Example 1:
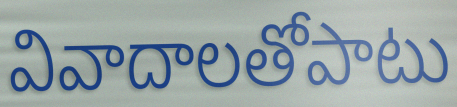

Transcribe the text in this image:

వివాదాలతోపాటు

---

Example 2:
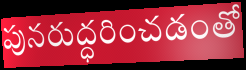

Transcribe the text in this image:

పునరుద్ధరించడంతో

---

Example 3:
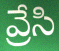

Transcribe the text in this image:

వ్రేసి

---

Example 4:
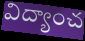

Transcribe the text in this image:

విద్యాంచ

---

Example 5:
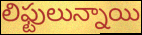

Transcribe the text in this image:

లిఫ్టులున్నాయి